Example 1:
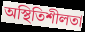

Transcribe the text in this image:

অস্থিতিশীলতা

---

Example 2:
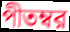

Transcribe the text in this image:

পীতম্বর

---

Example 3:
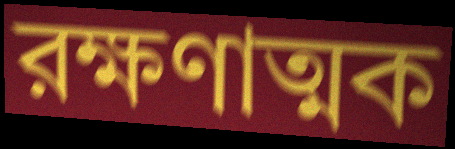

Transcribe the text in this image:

রক্ষণাত্মক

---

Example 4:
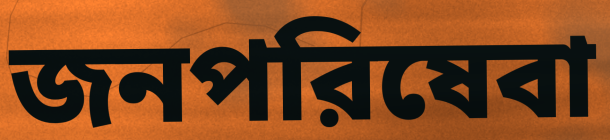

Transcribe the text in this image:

জনপরিষেবা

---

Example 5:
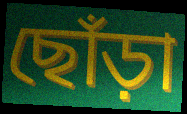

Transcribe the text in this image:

ছোঁড়া